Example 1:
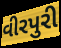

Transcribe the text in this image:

વીરપુરી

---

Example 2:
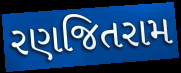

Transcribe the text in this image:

રણજિતરામ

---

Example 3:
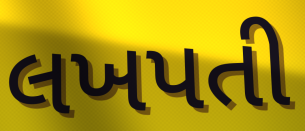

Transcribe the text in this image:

લખપતી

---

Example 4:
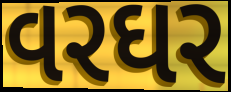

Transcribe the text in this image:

વરઘર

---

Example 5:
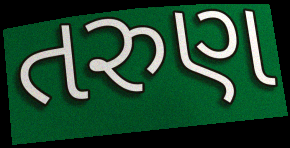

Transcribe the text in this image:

તરુણ